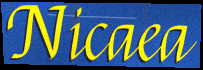
Nicaea